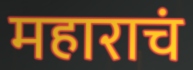
महाराचं